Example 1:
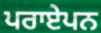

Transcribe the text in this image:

ਪਰਾਏਪਨ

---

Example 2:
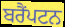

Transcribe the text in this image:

ਬਰੈਂਪਟਨ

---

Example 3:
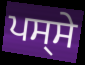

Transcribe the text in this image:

ਪਸ੍ਸੇ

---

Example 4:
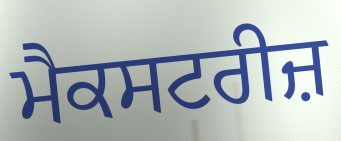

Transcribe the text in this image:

ਮੈਕਸਟਰੀਜ਼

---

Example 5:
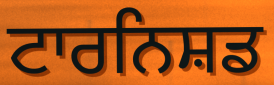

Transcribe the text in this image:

ਟਾਰਨਿਸ਼ਡ